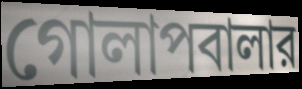
গোলাপবালার